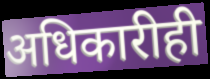
अधिकारीही